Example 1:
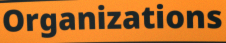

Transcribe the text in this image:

Organizations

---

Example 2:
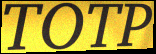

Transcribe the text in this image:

TOTP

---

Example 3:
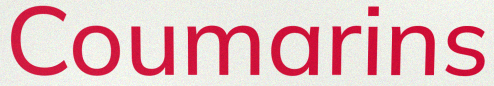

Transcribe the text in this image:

Coumarins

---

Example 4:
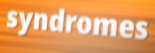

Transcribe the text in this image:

syndromes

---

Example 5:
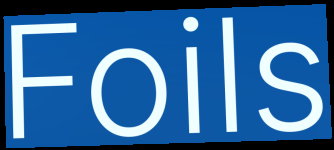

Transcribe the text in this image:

Foils